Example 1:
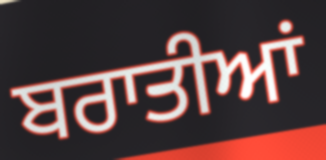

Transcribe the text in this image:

ਬਰਾਤੀਆਂ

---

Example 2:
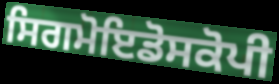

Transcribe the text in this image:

ਸਿਗਮੋਇਡੋਸਕੋਪੀ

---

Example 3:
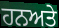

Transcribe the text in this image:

ਹਨਅਤੇ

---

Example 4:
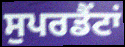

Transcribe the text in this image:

ਸੁਪਰਡੈਂਟਾਂ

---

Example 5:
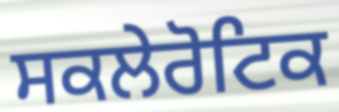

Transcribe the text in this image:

ਸਕਲੇਰੋਟਿਕ